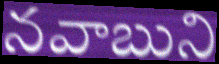
నవాబుని